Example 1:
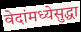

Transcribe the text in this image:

वेदांमध्येसुद्धा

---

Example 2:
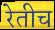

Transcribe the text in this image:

रेतीच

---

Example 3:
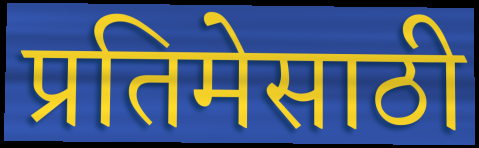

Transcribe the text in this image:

प्रतिमेसाठी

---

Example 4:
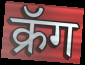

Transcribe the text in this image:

क्रॅग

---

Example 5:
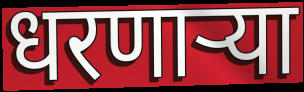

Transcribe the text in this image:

धरणाऱ्या